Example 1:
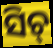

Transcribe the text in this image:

ସିଚ୍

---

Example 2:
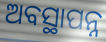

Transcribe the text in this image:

ଅବସ୍ଥାପନ୍ନ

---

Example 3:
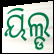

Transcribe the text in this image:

ୟିଲ୍ଡ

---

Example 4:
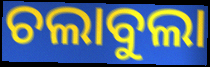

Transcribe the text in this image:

ଚଲାବୁଲା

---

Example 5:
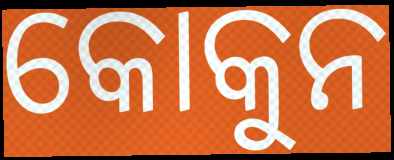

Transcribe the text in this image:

କୋକୁନ